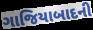
ગાજિયાબાદની